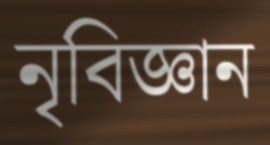
নৃবিজ্ঞান